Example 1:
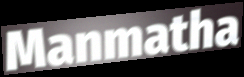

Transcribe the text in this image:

Manmatha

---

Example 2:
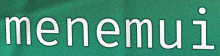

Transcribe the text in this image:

menemui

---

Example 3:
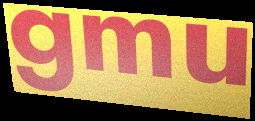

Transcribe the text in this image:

gmu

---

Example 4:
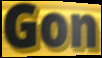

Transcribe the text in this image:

Gon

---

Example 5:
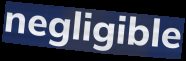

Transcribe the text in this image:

negligible